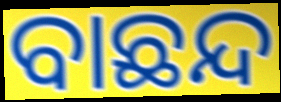
ବାଛନ୍ଦ